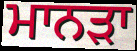
ਮਾਨੜਾ